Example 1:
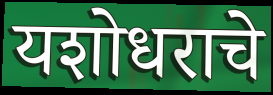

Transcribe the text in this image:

यशोधराचे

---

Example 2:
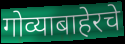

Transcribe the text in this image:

गोव्याबाहेरचे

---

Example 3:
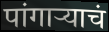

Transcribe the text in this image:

पांगाऱ्याचं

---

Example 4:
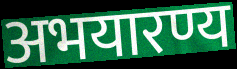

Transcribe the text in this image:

अभयारण्य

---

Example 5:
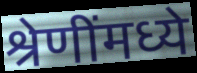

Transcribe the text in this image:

श्रेणींमध्ये